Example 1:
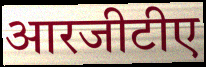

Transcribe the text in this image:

आरजीटीए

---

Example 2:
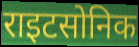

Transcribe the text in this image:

राइटसोनिक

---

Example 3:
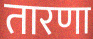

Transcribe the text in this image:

तारणा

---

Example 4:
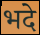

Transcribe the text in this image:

भदे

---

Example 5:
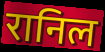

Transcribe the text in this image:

रानिल